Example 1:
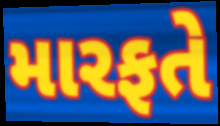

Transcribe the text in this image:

મારફતે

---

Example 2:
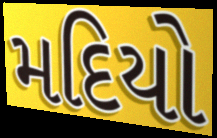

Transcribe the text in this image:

મદિયો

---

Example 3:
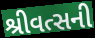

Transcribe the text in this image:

શ્રીવત્સની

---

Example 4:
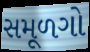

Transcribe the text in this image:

સમૂળગો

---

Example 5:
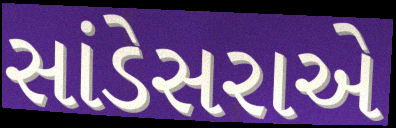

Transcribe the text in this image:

સાંડેસરાએ